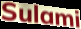
Sulami